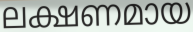
ലക്ഷണമായ